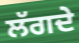
ਲੱਗਦੇ